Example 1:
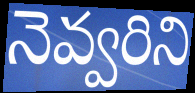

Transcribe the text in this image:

నెవ్వరిని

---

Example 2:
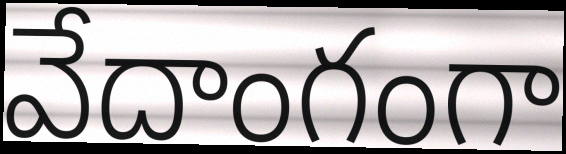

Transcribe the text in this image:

వేదాంగంగా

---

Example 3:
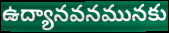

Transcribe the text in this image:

ఉద్యానవనమునకు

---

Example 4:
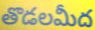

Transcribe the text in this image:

తొడలమీద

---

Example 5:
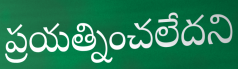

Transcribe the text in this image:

ప్రయత్నించలేదని